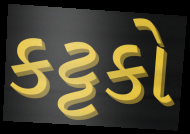
કટ્ટકો